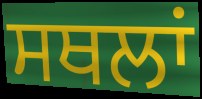
ਸਥਲਾਂ